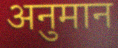
अनुमान